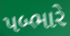
પબ્ભારે